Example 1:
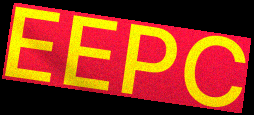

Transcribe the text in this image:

EEPC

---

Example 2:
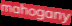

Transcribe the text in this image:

mahogany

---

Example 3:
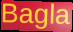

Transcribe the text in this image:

Bagla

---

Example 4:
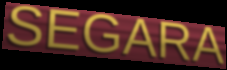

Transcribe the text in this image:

SEGARA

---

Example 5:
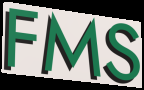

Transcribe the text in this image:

FMS